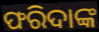
ଫରିଦାଙ୍କ